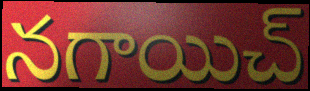
నగాయిచ్